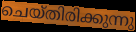
ചെയ്തിരിക്കുന്നു